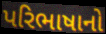
પરિભાષાનો